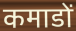
कमाडों